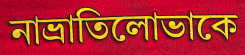
নাভ্রাতিলোভাকে